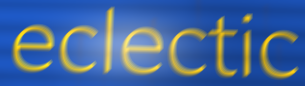
eclectic